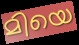
മിയെ